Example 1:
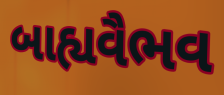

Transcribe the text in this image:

બાહ્યવૈભવ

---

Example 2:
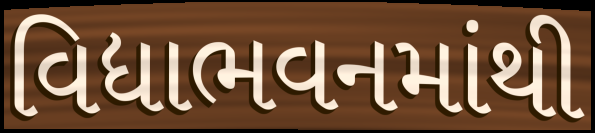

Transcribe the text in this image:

વિદ્યાભવનમાંથી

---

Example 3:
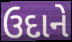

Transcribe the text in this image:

ઉદાને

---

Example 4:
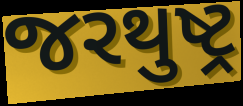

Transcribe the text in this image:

જરથુષ્ટ્ર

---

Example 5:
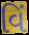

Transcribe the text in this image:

વિં